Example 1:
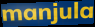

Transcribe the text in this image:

manjula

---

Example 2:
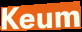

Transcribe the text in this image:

Keum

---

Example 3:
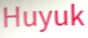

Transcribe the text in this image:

Huyuk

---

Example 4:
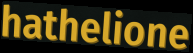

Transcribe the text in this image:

hathelione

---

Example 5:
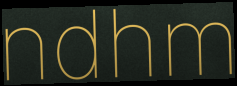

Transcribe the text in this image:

ndhm